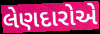
લેણદારોએ